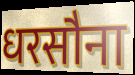
धरसौना